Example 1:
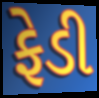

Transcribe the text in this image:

ફેડી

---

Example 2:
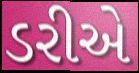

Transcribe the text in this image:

ડરીએ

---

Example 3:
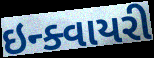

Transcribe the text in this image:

ઇન્ક્વાયરી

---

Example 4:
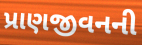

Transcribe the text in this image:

પ્રાણજીવનની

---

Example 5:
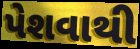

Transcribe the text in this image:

પેશવાથી